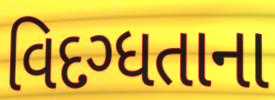
વિદગ્ધતાના